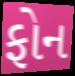
ફોન